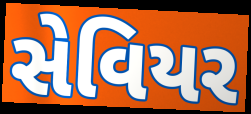
સેવિયર